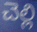
చెల్లి